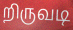
றிருவடி